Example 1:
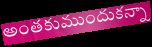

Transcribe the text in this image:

అంతకుముందుకన్నా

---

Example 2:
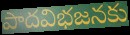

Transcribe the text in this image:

పాదవిభజనకు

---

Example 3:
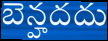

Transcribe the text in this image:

బెన్హదదు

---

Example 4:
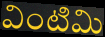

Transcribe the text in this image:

వింటిమి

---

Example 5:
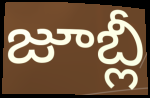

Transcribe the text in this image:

జూబ్లీ